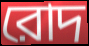
রোদ